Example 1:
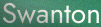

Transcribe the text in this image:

Swanton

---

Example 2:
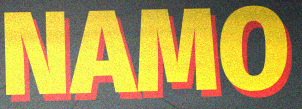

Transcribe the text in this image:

NAMO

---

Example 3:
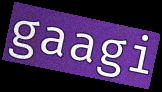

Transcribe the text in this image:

gaagi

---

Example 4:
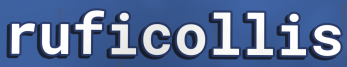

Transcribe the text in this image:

ruficollis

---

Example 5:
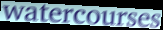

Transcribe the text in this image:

watercourses